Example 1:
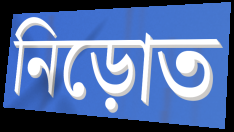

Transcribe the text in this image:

নিড়োত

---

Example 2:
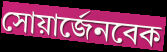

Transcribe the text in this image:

সোয়ার্জেনবেক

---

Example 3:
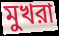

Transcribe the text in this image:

মুখরা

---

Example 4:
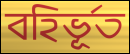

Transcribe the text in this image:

বহির্ভূত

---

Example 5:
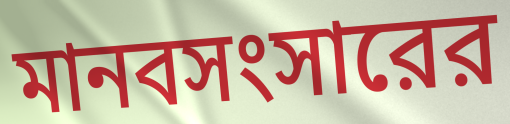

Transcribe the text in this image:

মানবসংসারের